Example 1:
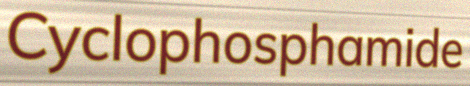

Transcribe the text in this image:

Cyclophosphamide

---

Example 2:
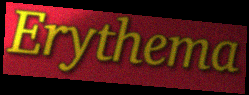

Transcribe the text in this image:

Erythema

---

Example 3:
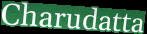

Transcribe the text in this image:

Charudatta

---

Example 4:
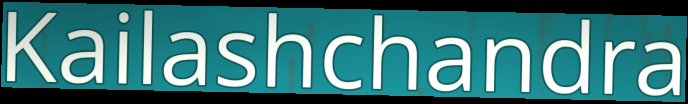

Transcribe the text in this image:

Kailashchandra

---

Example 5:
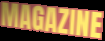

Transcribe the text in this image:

MAGAZINE